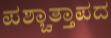
ಪಶ್ಚಾತ್ತಾಪದ